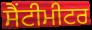
ਸੈਂਟੀਮੀਟਰ